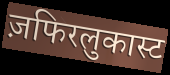
ज़फिरलुकास्ट